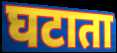
घटाता